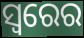
ସ୍ୱରେର